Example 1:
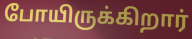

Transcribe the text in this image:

போயிருக்கிறார்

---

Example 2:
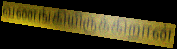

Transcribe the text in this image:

வணங்கியிருக்கிறான்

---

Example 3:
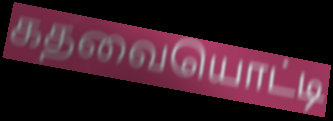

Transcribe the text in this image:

கதவையொட்டி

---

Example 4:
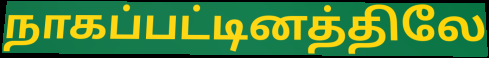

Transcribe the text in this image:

நாகப்பட்டினத்திலே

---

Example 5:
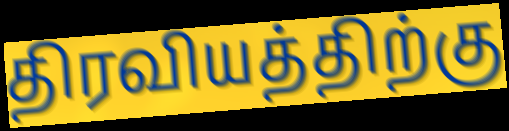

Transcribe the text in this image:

திரவியத்திற்கு